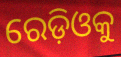
ରେଡ଼ିଓକୁ